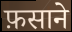
फ़साने